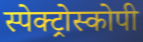
स्पेक्ट्रोस्कोपी